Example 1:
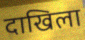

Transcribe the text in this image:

दाखिला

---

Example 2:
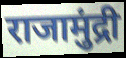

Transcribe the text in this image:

राजामुंद्री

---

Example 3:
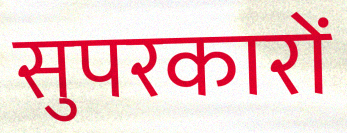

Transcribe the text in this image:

सुपरकारों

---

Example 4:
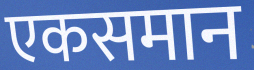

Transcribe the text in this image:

एकसमान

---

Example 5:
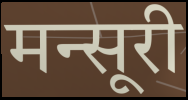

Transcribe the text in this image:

मन्सूरी